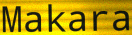
Makara